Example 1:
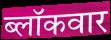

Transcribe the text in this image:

ब्लॉकवार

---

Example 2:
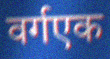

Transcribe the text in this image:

वर्गएक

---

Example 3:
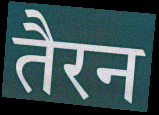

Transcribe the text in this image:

तैरन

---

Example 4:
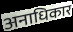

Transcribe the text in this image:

अनाधिकार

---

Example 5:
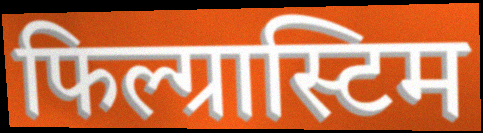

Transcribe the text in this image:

फिल्ग्रास्टिम